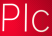
Plc